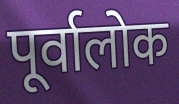
पूर्वालोक